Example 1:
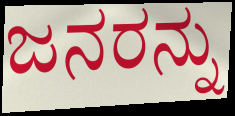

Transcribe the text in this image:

ಜನರನ್ನು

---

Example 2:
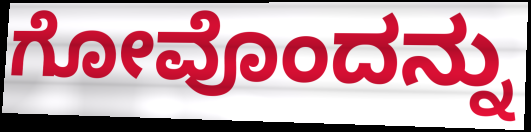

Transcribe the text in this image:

ಗೋವೊಂದನ್ನು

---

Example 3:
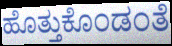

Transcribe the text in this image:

ಹೊತ್ತುಕೊಂಡಂತೆ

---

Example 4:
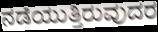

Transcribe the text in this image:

ನಡೆಯುತ್ತಿರುವುದರ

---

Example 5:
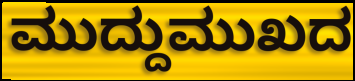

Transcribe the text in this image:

ಮುದ್ದುಮುಖದ